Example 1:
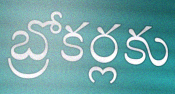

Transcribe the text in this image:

బ్రోకర్లకు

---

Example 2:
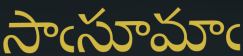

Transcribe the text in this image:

సాఁసూమాఁ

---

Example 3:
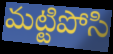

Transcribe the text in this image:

మట్టిపోసి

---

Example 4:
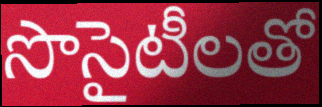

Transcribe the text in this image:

సొసైటీలతో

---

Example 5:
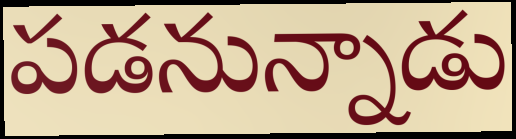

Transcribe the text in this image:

పడనున్నాడు